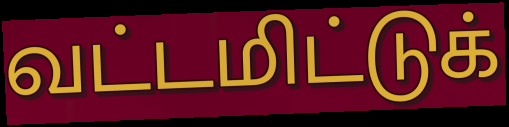
வட்டமிட்டுக்